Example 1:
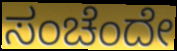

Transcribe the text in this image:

ಸಂಚೆಂದೇ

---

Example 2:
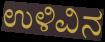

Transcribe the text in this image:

ಉಳಿವಿನ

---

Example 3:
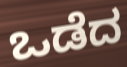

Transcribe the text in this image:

ಒಡೆದ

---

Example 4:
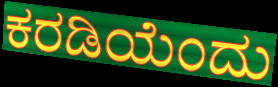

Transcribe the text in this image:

ಕರಡಿಯೆಂದು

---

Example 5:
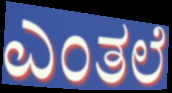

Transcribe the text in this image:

ಎಂತಲೆ